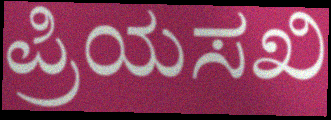
ಪ್ರಿಯಸಖಿ